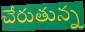
చేరుతున్న